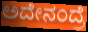
ಅದೇನಂದ್ರೆ